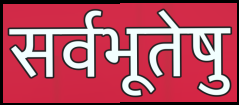
सर्वभूतेषु